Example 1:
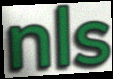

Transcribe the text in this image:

nls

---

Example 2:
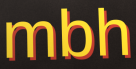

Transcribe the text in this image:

mbh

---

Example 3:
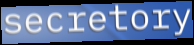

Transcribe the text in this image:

secretory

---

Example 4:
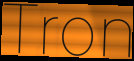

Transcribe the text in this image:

Tron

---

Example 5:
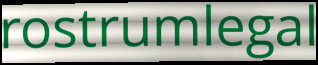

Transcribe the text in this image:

rostrumlegal